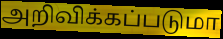
அறிவிக்கப்படுமா